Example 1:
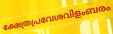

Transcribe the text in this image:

ക്ഷേത്രപ്രവേശവിളംബരം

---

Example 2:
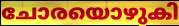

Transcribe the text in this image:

ചോരയൊഴുകി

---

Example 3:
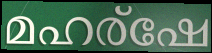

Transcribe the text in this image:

മഹര്ഷേ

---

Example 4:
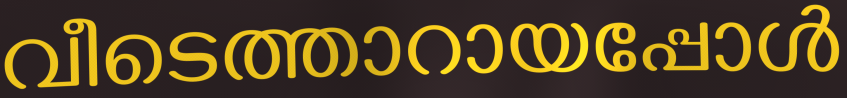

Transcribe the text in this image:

വീടെത്താറായപ്പോൾ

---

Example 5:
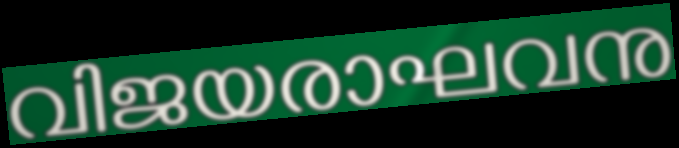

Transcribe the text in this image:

വിജയരാഘവനു